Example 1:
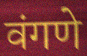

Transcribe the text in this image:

वंगणे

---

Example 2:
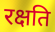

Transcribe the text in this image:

रक्षति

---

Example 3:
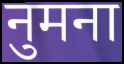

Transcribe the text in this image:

नुमना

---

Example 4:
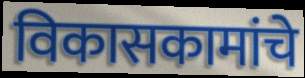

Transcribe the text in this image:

विकासकामांचे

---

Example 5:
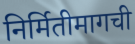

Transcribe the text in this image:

निर्मितीमागची